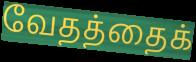
வேதத்தைக்